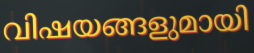
വിഷയങ്ങളുമായി